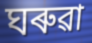
ঘৰুৱা